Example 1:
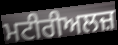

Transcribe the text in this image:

ਮਟੀਰੀਅਲਜ਼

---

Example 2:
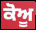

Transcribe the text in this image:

ਕੋਅੂ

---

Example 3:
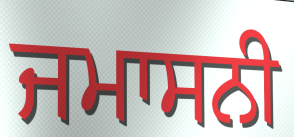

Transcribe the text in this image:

ਜਮਾਸਨੀ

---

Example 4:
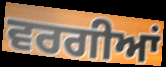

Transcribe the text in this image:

ਵਰਗੀਆਂ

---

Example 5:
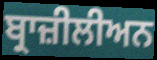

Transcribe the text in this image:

ਬ੍ਰਾਜ਼ੀਲੀਅਨ